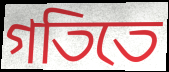
গতিতে